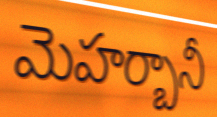
మెహర్బానీ